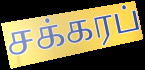
சக்கரப்